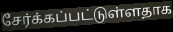
சேர்க்கப்பட்டுள்ளதாக